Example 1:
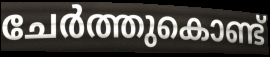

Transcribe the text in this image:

ചേർത്തുകൊണ്ട്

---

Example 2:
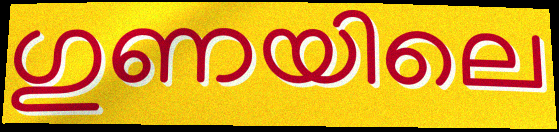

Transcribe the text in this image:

ഗുണയിലെ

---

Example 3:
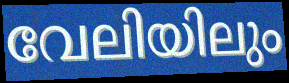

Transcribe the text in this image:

വേലിയിലും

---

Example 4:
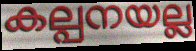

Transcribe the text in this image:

കല്പനയല്ല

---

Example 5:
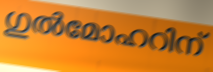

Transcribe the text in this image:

ഗുൽമോഹറിന്